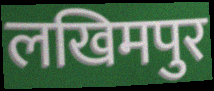
लखिमपुर